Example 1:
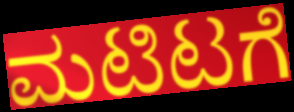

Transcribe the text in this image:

ಮಟಿಟಗೆ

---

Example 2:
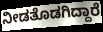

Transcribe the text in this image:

ನೀಡತೊಡಗಿದ್ದಾರೆ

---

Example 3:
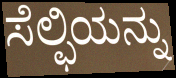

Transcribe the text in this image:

ಸೆಲ್ಫಿಯನ್ನು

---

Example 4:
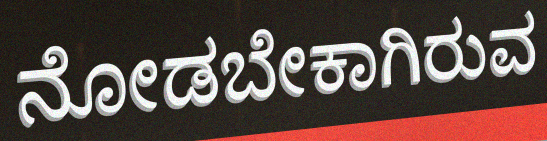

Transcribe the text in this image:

ನೋಡಬೇಕಾಗಿರುವ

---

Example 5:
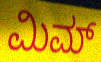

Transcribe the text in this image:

ಮಿಮ್